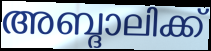
അബ്ദാലിക്ക്